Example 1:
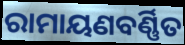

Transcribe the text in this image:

ରାମାୟଣବର୍ଣ୍ଣିତ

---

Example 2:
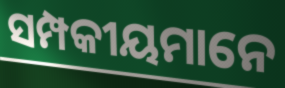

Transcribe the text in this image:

ସମ୍ପକୀୟମାନେ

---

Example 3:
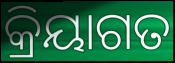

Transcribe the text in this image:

କ୍ରିୟାଗତ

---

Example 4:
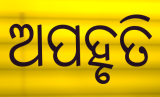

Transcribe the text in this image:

ଅପହୃତି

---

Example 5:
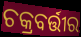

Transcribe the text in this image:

ଚକ୍ରବର୍ତ୍ତୀର